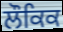
ਲੌਕਿਕ